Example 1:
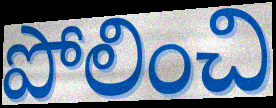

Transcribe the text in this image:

పోలించి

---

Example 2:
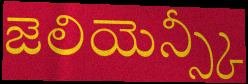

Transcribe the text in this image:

జెలియెన్స్కీ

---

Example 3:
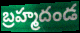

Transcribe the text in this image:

బ్రహ్మదండ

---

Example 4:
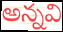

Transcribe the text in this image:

అన్నవి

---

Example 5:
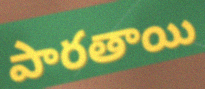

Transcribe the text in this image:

పారతాయి